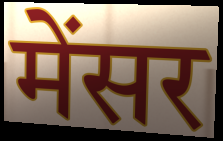
मेंसर